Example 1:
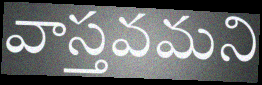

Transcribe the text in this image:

వాస్తవమని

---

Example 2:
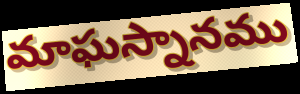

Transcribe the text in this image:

మాఘస్నానము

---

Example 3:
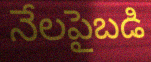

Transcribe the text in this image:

నేలపైబడి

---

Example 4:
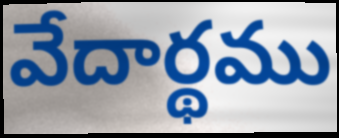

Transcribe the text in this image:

వేదార్థము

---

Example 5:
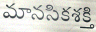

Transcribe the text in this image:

మానసికశక్తి